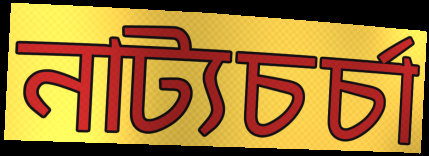
নাট্যচর্চা